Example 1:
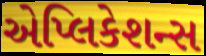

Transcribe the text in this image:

એપ્લિકેશન્સ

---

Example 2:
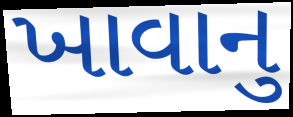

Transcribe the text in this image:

ખાવાનુ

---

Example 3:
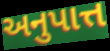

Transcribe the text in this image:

અનુપાત્ત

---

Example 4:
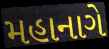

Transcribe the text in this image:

મહાનાગે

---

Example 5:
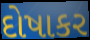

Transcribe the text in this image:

દોષાકર